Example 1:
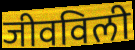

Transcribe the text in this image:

जीवविली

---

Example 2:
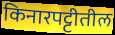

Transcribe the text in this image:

किनारपट्टीतील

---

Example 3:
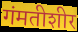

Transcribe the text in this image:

गंमतीशीर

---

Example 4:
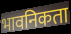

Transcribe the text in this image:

भावनिकता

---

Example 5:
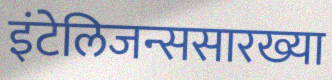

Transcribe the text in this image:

इंटेलिजन्ससारख्या